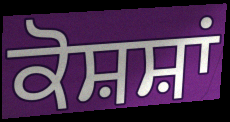
ਕੋਸ਼ਸ਼ਾਂ